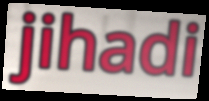
jihadi